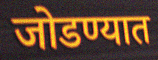
जोडण्यात